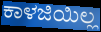
ಕಾಳಜಿಯಿಲ್ಲ